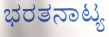
ಭರತನಾಟ್ಯ